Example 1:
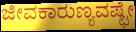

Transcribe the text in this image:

ಜೀವಕಾರುಣ್ಯವಷ್ಟೇ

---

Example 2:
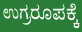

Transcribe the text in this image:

ಉಗ್ರರೂಪಕ್ಕೆ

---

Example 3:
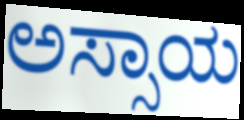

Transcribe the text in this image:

ಅಸ್ಸಾಯ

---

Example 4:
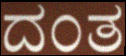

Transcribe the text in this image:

ದಂತ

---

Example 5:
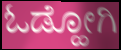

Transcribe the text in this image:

ಓಡ್ಹೋಗಿ